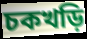
চকখড়ি